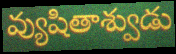
వ్యుషితాశ్వుడు